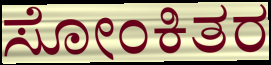
ಸೋಂಕಿತರ